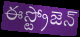
ఈస్ట్రోజెన్